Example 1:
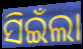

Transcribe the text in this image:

ସିଇଁଲା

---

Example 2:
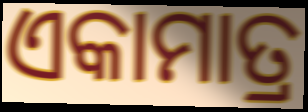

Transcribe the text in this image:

ଏକାମାତ୍ର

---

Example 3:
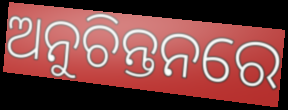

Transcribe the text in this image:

ଅନୁଚିନ୍ତନରେ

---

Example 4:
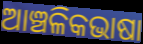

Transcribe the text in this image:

ଆଞ୍ଚଳିକଭାଷା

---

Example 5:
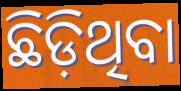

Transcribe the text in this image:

ଛିଡ଼ିଥିବା